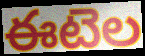
ఈటెల